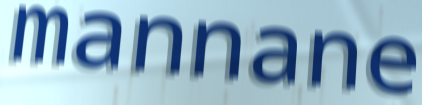
mannane